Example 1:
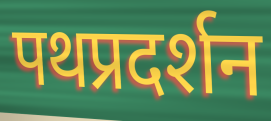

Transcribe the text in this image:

पथप्रदर्शन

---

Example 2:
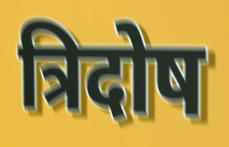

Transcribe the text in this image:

त्रिदोष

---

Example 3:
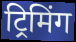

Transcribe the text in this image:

ट्रिमिंग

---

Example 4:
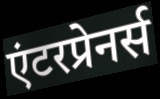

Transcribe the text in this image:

एंटरप्रेनर्स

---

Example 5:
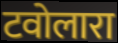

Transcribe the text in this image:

टवोलारा